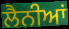
ਲੈਨੀਆਂ